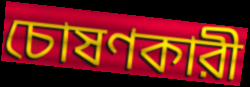
চোষণকারী